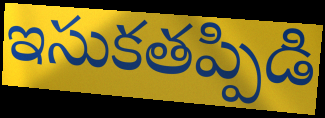
ఇసుకతప్పిడి